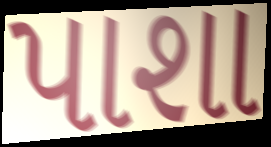
પાશા